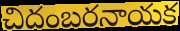
చిదంబరనాయక